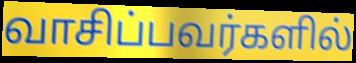
வாசிப்பவர்களில்